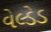
વેલ્ડેડ